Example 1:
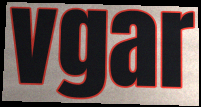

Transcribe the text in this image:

vgar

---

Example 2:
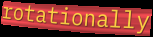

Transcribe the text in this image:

rotationally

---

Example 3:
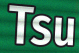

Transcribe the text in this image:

Tsu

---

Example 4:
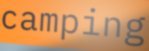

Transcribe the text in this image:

camping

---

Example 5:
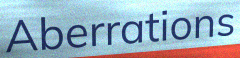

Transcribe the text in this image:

Aberrations